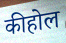
कीहोल